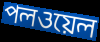
পলওয়েল